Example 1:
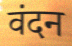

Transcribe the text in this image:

वंदन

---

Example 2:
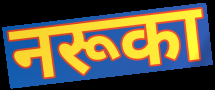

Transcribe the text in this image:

नरूका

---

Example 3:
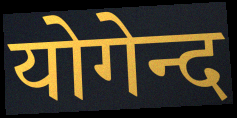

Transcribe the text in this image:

योगेन्द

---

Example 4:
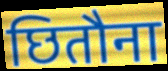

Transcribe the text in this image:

छितौना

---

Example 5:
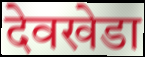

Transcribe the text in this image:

देवखेडा